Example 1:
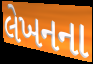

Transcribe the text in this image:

લેખનના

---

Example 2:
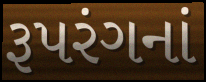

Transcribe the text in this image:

રૂપરંગનાં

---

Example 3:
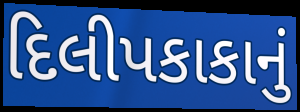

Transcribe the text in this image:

દિલીપકાકાનું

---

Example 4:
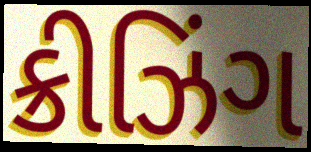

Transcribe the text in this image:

ક્રીઝિંગ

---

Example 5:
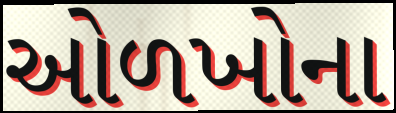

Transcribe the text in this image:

ઓળખોના